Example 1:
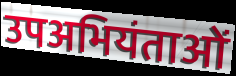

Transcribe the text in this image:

उपअभियंताओं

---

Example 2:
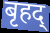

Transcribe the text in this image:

बृहद्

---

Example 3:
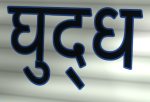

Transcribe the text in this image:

घुद्ध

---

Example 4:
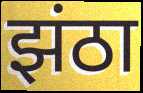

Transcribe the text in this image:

झंठा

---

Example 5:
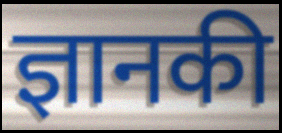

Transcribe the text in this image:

ज्ञानकी